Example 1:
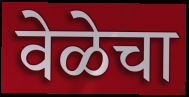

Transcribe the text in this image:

वेळेचा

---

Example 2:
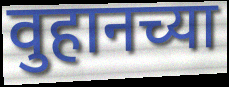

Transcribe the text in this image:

वुहानच्या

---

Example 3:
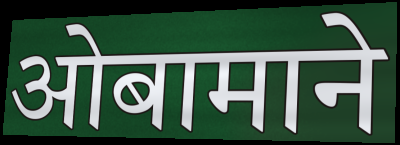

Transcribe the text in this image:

ओबामाने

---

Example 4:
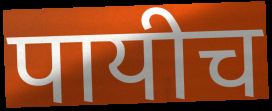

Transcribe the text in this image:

पायीच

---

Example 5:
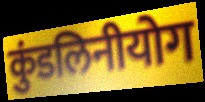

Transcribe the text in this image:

कुंडलिनीयोग